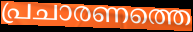
പ്രചാരണത്തെ